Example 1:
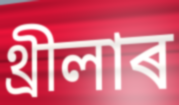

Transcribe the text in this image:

থ্ৰীলাৰ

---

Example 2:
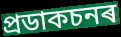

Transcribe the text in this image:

প্ৰডাকচনৰ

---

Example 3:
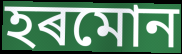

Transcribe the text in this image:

হৰমোন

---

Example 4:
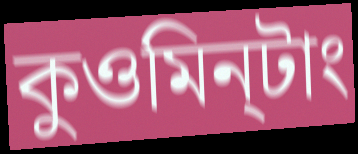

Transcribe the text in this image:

কুওমিন্‌টাং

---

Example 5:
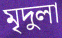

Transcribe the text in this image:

মৃদুলা